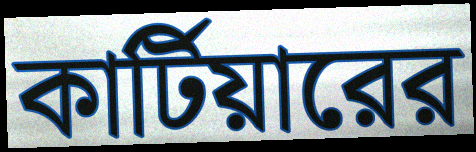
কার্টিয়ারের